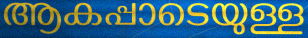
ആകപ്പാടെയുള്ള